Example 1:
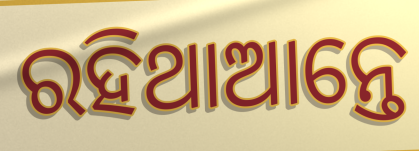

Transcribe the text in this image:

ରହିଥାଆନ୍ତେ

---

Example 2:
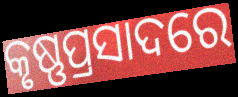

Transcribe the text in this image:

କୃଷ୍ଣପ୍ରସାଦରେ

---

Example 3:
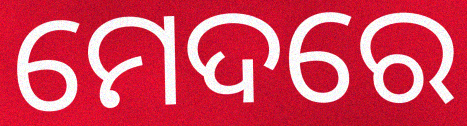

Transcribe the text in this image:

ମେଦରେ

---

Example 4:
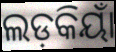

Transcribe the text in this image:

ଲଡ଼କିୟାଁ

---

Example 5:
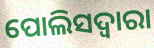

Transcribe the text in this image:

ପୋଲିସଦ୍ୱାରା